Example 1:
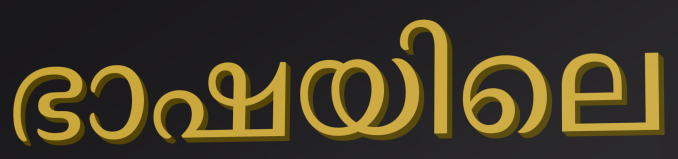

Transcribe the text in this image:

ഭാഷയിലെ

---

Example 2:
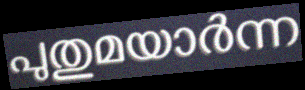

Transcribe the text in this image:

പുതുമയാർന്ന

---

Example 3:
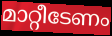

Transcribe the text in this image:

മാറ്റീടേണം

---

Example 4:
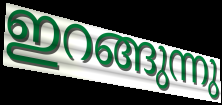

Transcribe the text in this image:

ഇറങ്ങുന്നു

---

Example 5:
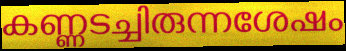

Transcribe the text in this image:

കണ്ണടച്ചിരുന്നശേഷം